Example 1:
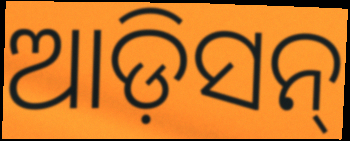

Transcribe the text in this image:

ଆଡ଼ିସନ୍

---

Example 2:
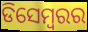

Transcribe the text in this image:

ଡିସେମ୍ୱରର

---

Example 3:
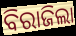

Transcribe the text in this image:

ବିରାଜିଲା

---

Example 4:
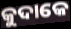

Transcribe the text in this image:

କୁଦାକେ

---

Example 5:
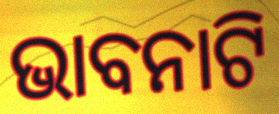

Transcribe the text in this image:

ଭାବନାଟି